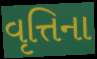
વૃત્તિના